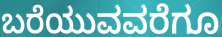
ಬರೆಯುವವರೆಗೂ